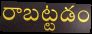
రాబట్టడం